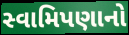
સ્વામિપણાનો